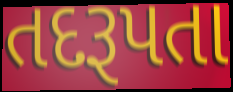
તદરૂપતા